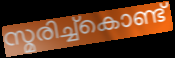
സ്മരിച്ച്കൊണ്ട്